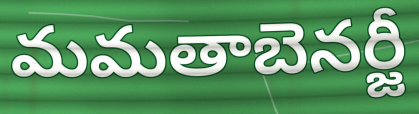
మమతాబెనర్జీ